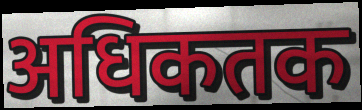
अधिकतक